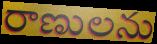
రాణులను